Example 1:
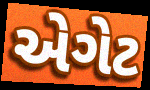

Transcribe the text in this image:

એગેટ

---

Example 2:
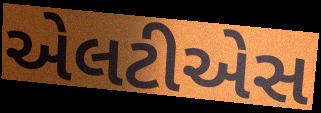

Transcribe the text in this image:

એલટીએસ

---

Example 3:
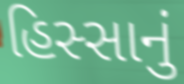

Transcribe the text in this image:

હિસ્સાનું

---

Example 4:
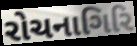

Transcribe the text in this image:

રોચનાગિરિ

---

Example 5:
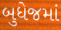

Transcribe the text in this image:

બુધેજમાં